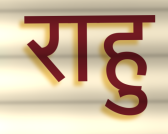
राहु